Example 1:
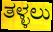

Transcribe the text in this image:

ತಳ್ಳಲು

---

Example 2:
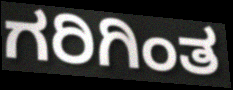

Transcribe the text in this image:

ಗರಿಗಿಂತ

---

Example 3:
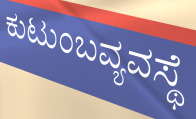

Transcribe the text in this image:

ಕುಟುಂಬವ್ಯವಸ್ಥೆ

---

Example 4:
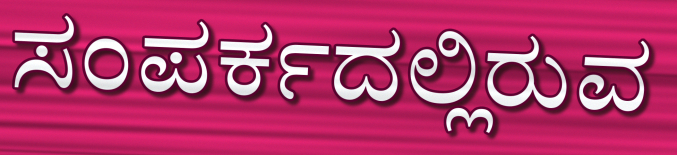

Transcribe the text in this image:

ಸಂಪರ್ಕದಲ್ಲಿರುವ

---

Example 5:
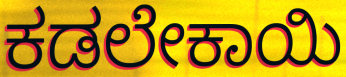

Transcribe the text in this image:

ಕಡಲೇಕಾಯಿ